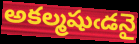
అకల్మషుఁడనై